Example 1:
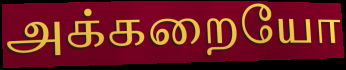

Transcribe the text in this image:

அக்கறையோ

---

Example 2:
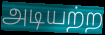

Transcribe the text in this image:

அடியற்ற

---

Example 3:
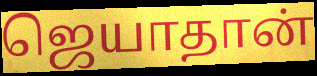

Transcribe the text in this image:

ஜெயாதான்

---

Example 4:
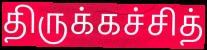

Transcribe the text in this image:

திருக்கச்சித்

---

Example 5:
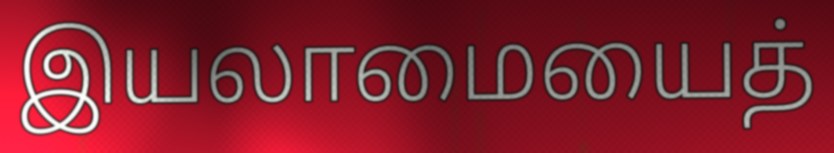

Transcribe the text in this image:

இயலாமையைத்